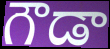
గౌడా